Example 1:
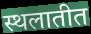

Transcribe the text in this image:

स्थलातीत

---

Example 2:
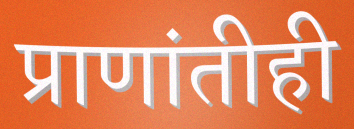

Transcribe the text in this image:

प्राणांतीही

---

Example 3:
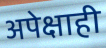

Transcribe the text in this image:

अपेक्षाही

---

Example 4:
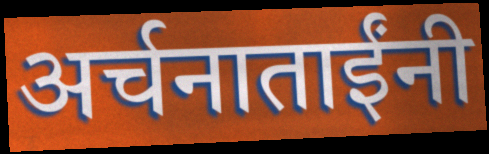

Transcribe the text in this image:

अर्चनाताईंनी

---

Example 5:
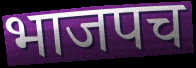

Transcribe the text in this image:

भाजपच